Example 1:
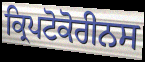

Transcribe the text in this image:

ਕ੍ਰਿਪਟੋਕੋਰੀਨਸ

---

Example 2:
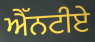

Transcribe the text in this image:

ਐੱਨਟੀਏ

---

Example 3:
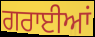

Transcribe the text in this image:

ਗਰਾਈਆਂ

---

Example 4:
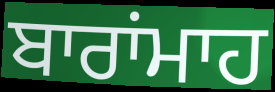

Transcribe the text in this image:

ਬਾਰਾਂਮਾਹ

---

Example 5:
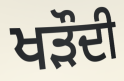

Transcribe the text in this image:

ਖੜੌਦੀ